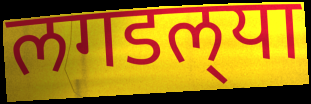
लगडल्या